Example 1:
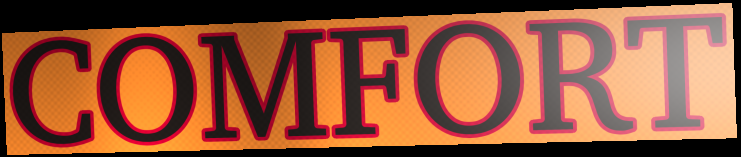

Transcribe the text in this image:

COMFORT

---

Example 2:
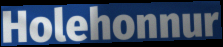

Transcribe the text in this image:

Holehonnur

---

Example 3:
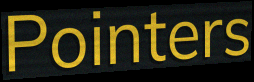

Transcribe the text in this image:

Pointers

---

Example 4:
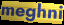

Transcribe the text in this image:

meghni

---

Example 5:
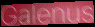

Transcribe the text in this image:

Galenus